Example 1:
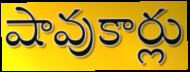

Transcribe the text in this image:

షావుకార్లు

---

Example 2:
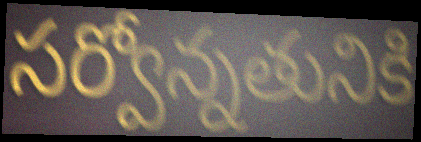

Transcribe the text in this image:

సర్వోన్నతునికి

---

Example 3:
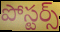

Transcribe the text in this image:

పోస్టర్స్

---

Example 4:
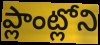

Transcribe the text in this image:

ప్లాంట్లోని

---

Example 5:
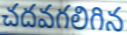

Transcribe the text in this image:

చదవగలిగిన